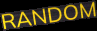
RANDOM